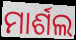
ମାର୍ଶଲ